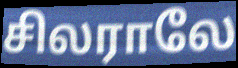
சிலராலே